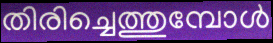
തിരിച്ചെത്തുമ്പോൾ